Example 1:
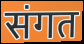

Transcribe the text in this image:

संगत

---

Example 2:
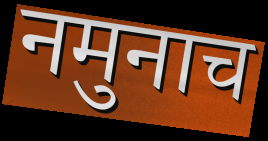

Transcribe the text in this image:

नमुनाच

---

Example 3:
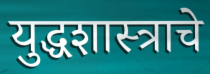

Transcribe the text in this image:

युद्धशास्त्राचे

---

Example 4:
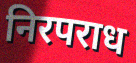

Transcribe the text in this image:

निरपराध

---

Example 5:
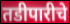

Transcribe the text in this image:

तडीपारीचे